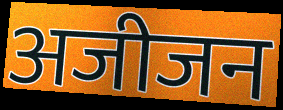
अजीजन